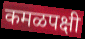
कमळपक्षी